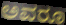
ಅವರೂ